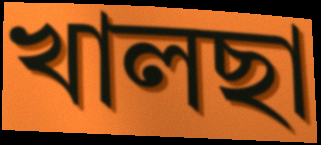
খালছা